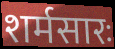
शर्मसारः